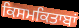
ਕਿਸਮਕਿਤਾਬਾਂ